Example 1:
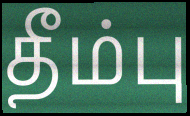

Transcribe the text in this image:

தீம்பு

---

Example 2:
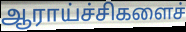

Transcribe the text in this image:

ஆராய்ச்சிகளைச்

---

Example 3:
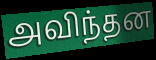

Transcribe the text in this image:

அவிந்தன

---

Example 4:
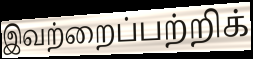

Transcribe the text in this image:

இவற்றைப்பற்றிக்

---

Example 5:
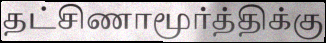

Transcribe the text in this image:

தட்சிணாமூர்த்திக்கு